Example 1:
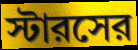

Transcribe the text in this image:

স্টারসের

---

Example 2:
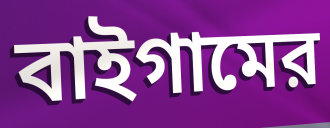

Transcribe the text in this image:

বাইগামের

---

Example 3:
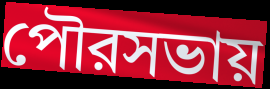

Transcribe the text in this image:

পৌরসভায়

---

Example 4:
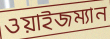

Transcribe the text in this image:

ওয়াইজম্যান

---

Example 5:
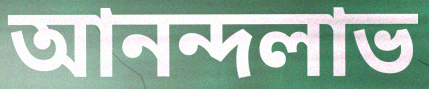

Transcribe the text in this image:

আনন্দলাভ